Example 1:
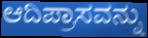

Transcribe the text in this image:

ಆದಿಪ್ರಾಸವನ್ನು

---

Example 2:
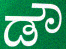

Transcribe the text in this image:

ಡೌ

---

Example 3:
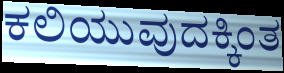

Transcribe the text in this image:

ಕಲಿಯುವುದಕ್ಕಿಂತ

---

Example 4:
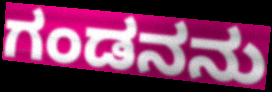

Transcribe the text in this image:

ಗಂಡನನು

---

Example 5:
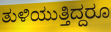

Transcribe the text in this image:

ತುಳಿಯುತ್ತಿದ್ದರೂ